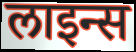
लाइन्स